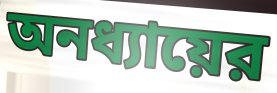
অনধ্যায়ের